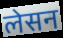
लेसन